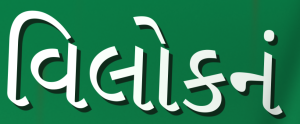
વિલોકનં